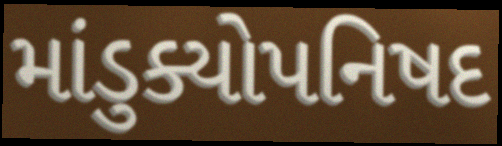
માંડુક્યોપનિષદ